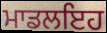
ਮਾਡਲਇਹ